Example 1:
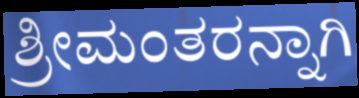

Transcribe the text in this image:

ಶ್ರೀಮಂತರನ್ನಾಗಿ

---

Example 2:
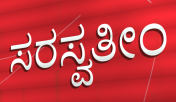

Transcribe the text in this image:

ಸರಸ್ವತೀಂ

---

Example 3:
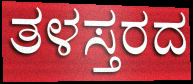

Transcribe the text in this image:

ತಳಸ್ತರದ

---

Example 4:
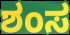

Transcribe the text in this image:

ಶಂಸ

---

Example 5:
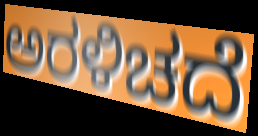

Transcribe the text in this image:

ಅರಳಿಚದೆ